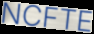
NCFTE